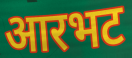
आरभट